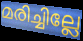
മരിച്ചില്ലേ